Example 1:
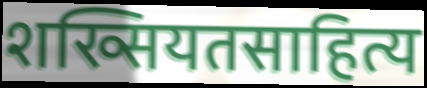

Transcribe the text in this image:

शख्सियतसाहित्य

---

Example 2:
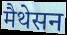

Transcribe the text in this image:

मैथेसन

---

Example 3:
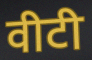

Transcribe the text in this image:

वीटी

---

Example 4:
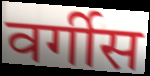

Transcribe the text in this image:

वर्गीस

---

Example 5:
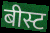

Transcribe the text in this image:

बीस्ट